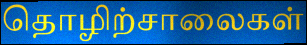
தொழிற்சாலைகள்